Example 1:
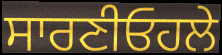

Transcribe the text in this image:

ਸਾਰਣੀਓਹਲੇ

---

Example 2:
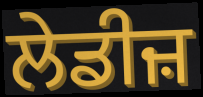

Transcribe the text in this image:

ਲੇਡੀਜ਼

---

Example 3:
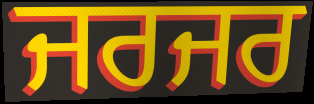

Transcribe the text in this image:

ਜਰਜਰ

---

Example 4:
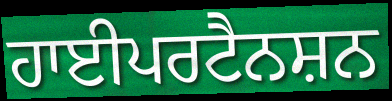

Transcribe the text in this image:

ਹਾਈਪਰਟੈਨਸ਼ਨ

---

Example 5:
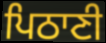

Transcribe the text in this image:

ਪਿਠਾਣੀ